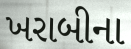
ખરાબીના